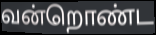
வன்றொண்ட